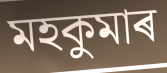
মহকুমাৰ